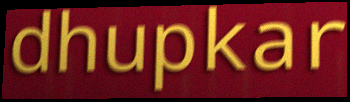
dhupkar